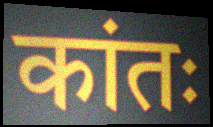
कांतः